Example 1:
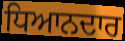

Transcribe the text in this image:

ਧਿਆਨਦਾਰ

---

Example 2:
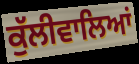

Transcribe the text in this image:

ਕੁੱਲੀਵਾਲਿਆਂ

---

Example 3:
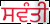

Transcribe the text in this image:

ਸਵੰਤੀ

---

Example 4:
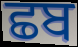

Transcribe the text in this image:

ਛਬ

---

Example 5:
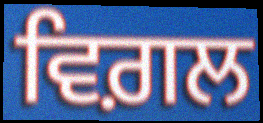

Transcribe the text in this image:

ਵਿਗ਼ਲ